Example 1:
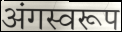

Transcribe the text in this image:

अंगस्वरूप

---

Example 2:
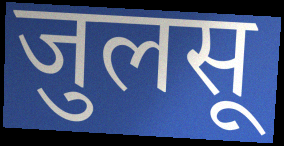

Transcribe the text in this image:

जुलसू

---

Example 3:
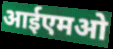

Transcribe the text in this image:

आईएमओ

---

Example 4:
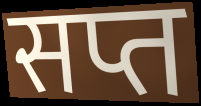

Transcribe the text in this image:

सप्त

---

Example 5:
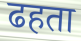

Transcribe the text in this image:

ढहता